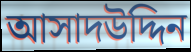
আসাদউদ্দিন